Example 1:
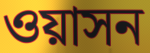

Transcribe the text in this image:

ওয়াসন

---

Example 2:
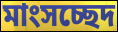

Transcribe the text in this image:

মাংসচ্ছেদ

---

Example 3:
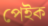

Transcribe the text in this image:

পেইক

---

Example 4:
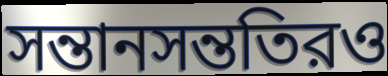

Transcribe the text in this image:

সন্তানসন্ততিরও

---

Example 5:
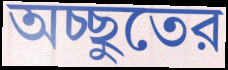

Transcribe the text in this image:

অচ্ছুতের